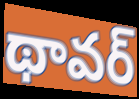
థావర్